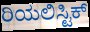
ರಿಯಲಿಸ್ಟಿಕ್